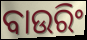
ବାଉରିଂ